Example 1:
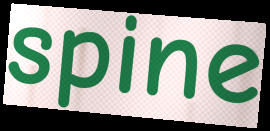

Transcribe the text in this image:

spine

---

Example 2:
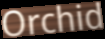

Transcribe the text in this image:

Orchid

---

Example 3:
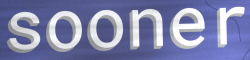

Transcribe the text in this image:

sooner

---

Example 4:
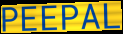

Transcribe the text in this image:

PEEPAL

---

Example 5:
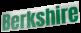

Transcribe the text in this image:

Berkshire